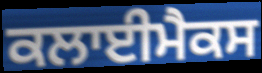
ਕਲਾਈਮੈਕਸ